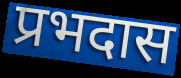
प्रभदास